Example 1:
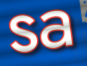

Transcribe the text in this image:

sa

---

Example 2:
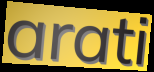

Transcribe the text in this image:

arati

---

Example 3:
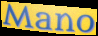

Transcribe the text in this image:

Mano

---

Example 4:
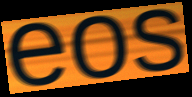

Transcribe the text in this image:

eos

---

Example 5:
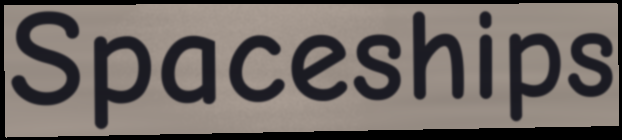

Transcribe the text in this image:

Spaceships